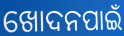
ଖୋଦନପାଇଁ